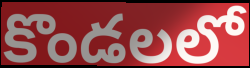
కొండలలో